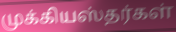
முக்கியஸ்தர்கள்